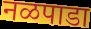
नळपाडा